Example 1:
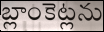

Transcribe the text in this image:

బ్లాంకెట్లను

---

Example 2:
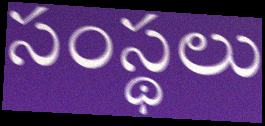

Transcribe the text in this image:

సంస్థలు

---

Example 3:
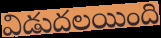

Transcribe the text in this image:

విడుదలయింది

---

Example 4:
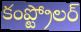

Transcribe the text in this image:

కంప్ట్రోలర్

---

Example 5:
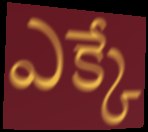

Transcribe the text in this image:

ఎక్కే